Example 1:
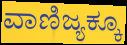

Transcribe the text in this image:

ವಾಣಿಜ್ಯಕ್ಕೂ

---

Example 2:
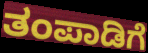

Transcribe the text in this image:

ತಂಪಾಡಿಗೆ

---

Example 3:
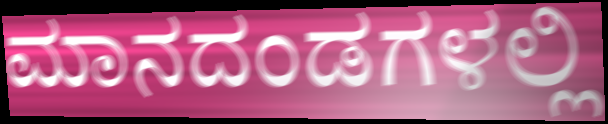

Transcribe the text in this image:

ಮಾನದಂಡಗಳಲ್ಲಿ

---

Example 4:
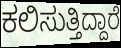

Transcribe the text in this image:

ಕಲಿಸುತ್ತಿದ್ದಾರೆ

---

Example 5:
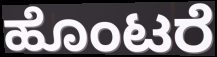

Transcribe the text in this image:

ಹೊಂಟರೆ